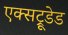
एक्सट्रूडेड